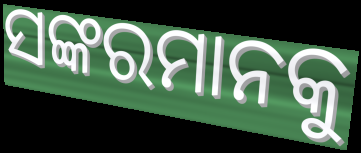
ସଙ୍କରମାନକୁ